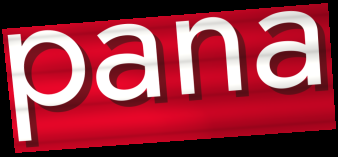
pana